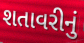
શતાવરીનું